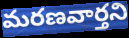
మరణవార్తని